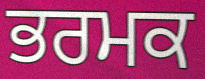
ਭਰਮਕ